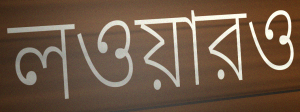
লওয়ারও